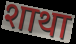
शाथा